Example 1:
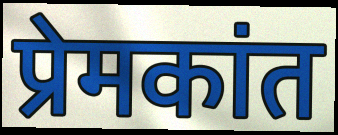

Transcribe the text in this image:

प्रेमकांत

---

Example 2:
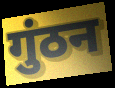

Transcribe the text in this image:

गुंठन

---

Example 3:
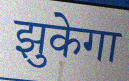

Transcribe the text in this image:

झुकेगा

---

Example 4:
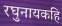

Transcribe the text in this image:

रघुनायकहि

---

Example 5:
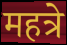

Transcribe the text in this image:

महत्रे